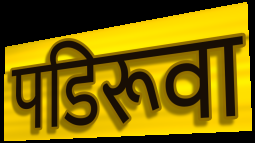
पडिरूवा